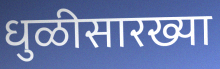
धुळीसारख्या